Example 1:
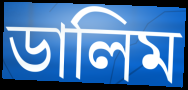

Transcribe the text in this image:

ডালিম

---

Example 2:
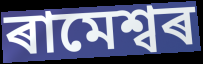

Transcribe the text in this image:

ৰামেশ্বৰ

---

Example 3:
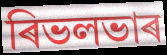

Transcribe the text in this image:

ৰিভলভাৰ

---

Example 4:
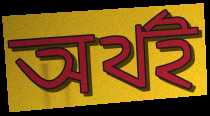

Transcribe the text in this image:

অৰ্থই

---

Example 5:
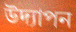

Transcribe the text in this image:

উদ্যাপন